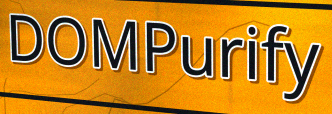
DOMPurify